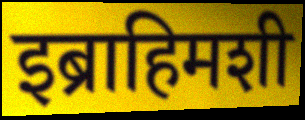
इब्राहिमशी